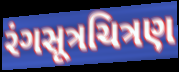
રંગસૂત્રચિત્રણ